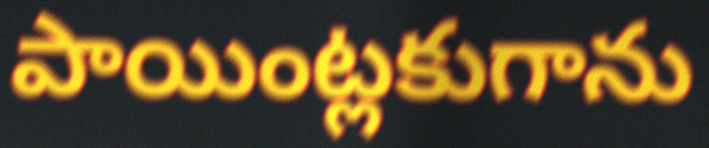
పాయింట్లకుగాను